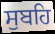
ਸੁਬਹਿ